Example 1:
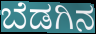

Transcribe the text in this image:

ಬೆಡಗಿನ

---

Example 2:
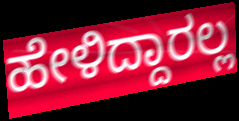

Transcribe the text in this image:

ಹೇಳಿದ್ದಾರಲ್ಲ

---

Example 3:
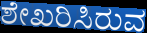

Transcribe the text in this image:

ಶೇಖರಿಸಿರುವ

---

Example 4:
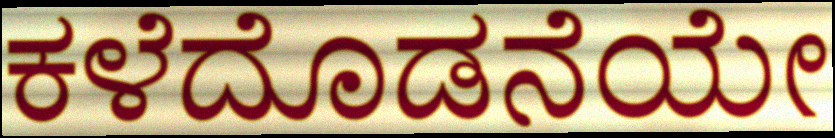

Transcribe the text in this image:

ಕಳೆದೊಡನೆಯೇ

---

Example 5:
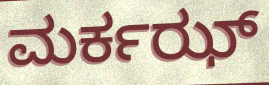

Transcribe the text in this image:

ಮರ್ಕಝ್